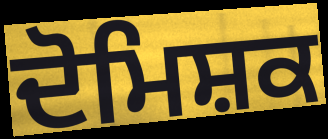
ਦੋਮਿਸ਼ਕ